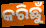
କରିଛୁଁ